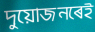
দুয়োজনৰেই